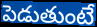
పెడుతుంటే